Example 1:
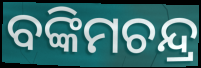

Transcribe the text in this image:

ବଙ୍କିମଚନ୍ଦ୍ର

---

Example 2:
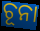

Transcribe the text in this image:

ଚୂନା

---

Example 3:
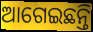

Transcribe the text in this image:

ଆଗେଇଛନ୍ତି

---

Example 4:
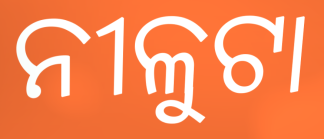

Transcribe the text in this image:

ନୀଳୁଟା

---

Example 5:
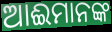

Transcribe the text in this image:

ଆଈମାନଙ୍କ